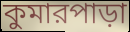
কুমারপাড়া